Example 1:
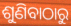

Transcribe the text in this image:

ଶୁଣିବାଠାରୁ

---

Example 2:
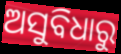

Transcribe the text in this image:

ଅସୁବିଧାରୁ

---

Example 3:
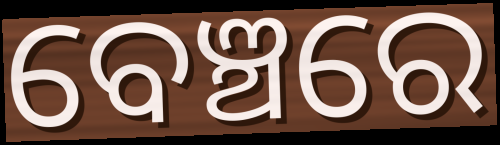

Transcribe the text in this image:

ବେଞ୍ଚରେ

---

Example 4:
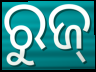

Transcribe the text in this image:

ରୁଜ୍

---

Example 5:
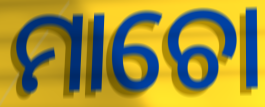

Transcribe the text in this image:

ମାଚୋ